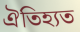
ঐতিহ্যত